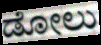
ಡೋಲು